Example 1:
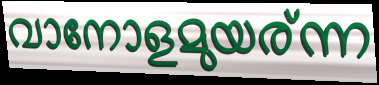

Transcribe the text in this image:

വാനോളമുയര്ന്ന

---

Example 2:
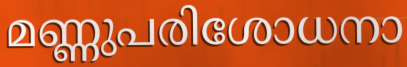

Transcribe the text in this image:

മണ്ണുപരിശോധനാ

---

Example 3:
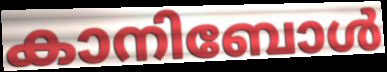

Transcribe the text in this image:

കാനിബോൾ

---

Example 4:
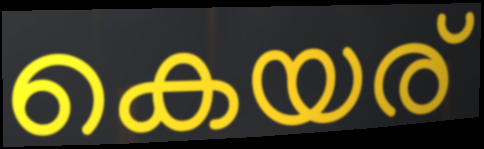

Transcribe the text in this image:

കെയര്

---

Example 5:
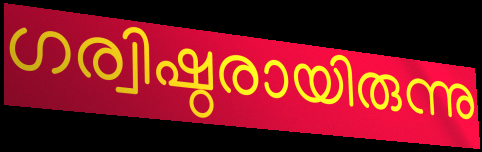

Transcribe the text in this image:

ഗര്വിഷ്ഠരായിരുന്നു